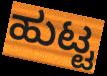
ಹುಟ್ಟ